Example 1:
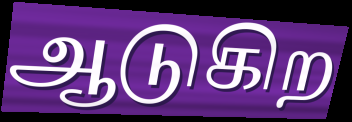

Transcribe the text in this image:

ஆடுகிற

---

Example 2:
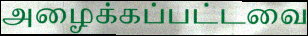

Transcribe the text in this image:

அழைக்கப்பட்டவை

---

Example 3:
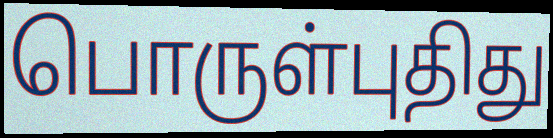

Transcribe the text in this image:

பொருள்புதிது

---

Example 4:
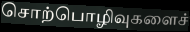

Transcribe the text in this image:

சொற்பொழிவுகளைச்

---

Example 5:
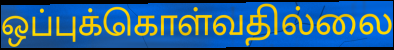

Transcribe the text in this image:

ஒப்புக்கொள்வதில்லை